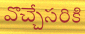
వొచ్చేసరికి